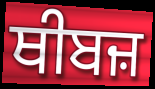
ਥੀਬਜ਼